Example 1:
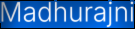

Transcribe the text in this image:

Madhurajni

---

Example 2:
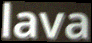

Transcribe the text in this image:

lava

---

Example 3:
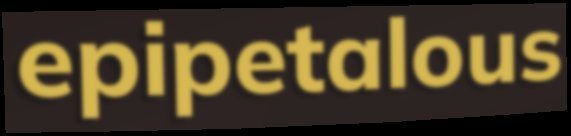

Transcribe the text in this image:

epipetalous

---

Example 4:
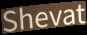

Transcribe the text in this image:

Shevat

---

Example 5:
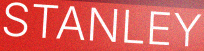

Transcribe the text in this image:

STANLEY